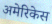
अमेरिकेस